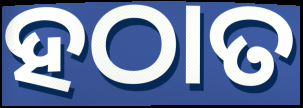
ହଠାତ